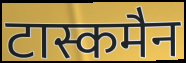
टास्कमैन